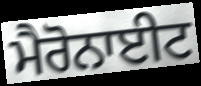
ਮੈਰੋਨਾਈਟ